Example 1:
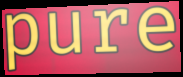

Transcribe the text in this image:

pure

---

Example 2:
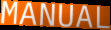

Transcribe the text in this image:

MANUAL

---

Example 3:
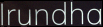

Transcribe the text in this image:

Irundha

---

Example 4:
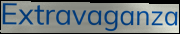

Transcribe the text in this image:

Extravaganza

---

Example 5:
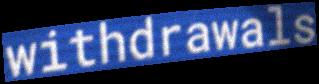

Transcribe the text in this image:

withdrawals